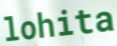
lohita